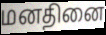
மனதினை